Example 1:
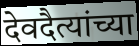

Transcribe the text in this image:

देवदैत्यांच्या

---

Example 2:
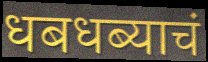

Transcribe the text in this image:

धबधब्याचं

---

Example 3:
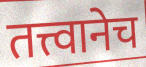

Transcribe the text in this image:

तत्त्वानेच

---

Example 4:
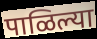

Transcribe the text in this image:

पाळिल्या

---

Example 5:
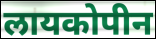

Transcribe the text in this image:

लायकोपीन